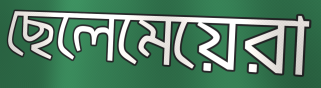
ছেলেমেয়েরা